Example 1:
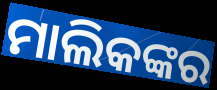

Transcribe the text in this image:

ମାଲିକଙ୍କର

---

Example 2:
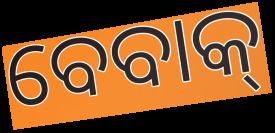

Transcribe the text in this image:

ବେବାକ୍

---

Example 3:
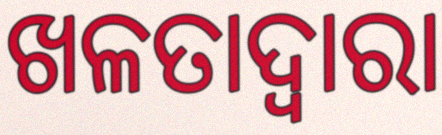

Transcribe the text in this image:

ଖଳତାଦ୍ଵାରା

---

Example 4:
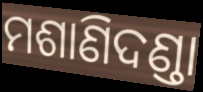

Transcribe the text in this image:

ମଶାଣିଦଣ୍ଡା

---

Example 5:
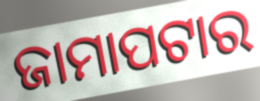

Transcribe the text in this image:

ଜାମାପଟାର